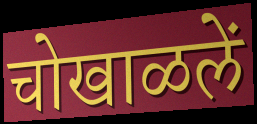
चोखाळलें